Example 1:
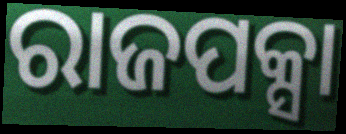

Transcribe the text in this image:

ରାଜପକ୍ସା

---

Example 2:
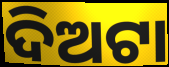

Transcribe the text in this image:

ଦିଅଟା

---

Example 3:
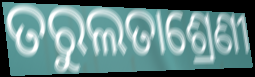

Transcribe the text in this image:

ତରୁଲତାଶ୍ରେଣୀ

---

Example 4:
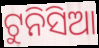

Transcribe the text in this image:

ଟୁନିସିଆ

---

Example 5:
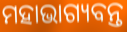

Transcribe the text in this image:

ମହାଭାଗ୍ୟବନ୍ତ